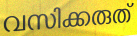
വസിക്കരുത്